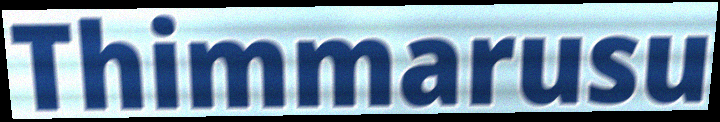
Thimmarusu